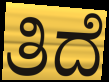
ತಿದೆ